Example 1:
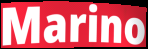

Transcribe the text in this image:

Marino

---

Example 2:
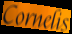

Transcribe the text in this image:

Cornelis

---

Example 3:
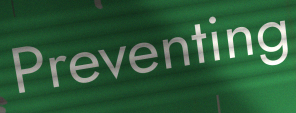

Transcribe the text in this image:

Preventing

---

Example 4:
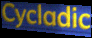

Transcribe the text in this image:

Cycladic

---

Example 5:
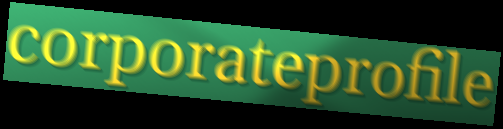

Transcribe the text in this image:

corporateprofile